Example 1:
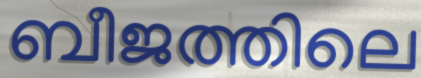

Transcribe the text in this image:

ബീജത്തിലെ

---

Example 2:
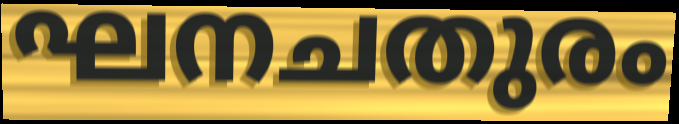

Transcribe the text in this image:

ഘനചതുരം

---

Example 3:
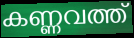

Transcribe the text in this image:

കണ്ണവത്ത്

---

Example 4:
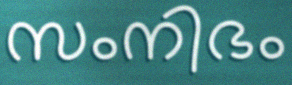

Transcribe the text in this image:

സംനിഭം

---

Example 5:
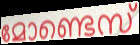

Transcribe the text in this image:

മോണ്ടെസ്